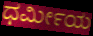
ಧರ್ಮೀಯ